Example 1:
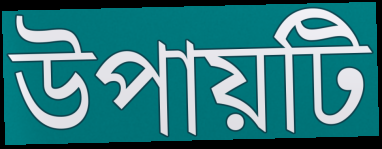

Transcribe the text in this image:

উপায়টি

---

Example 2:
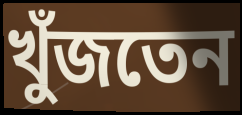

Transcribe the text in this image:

খুঁজতেন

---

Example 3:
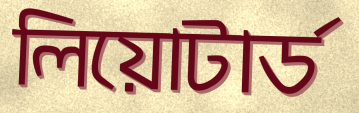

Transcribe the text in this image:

লিয়োটার্ড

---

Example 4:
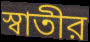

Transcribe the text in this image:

স্বাতীর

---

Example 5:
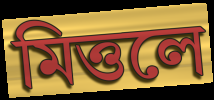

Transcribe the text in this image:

মিত্তলে